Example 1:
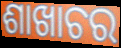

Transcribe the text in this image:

ଶାଖାଚର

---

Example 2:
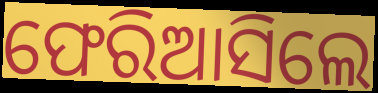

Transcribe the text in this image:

ଫେରିଆସିଲେ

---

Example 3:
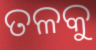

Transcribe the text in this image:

ତଳକୁ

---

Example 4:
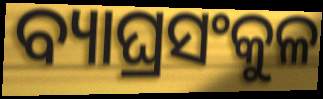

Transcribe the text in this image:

ବ୍ୟାଘ୍ରସଂକୁଳ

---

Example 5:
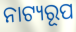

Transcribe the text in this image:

ନାଟ୍ୟରୂପ